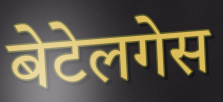
बेटेलगेस